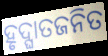
ହୃଦ୍ଘାତଜନିତ